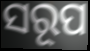
ସରୂପ